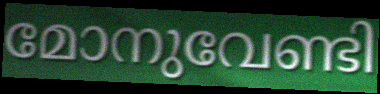
മോനുവേണ്ടി